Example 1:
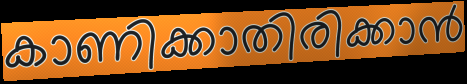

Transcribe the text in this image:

കാണിക്കാതിരിക്കാൻ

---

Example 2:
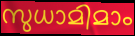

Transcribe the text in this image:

സുധാമിമാം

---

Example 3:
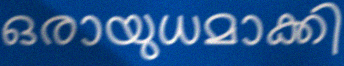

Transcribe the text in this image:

ഒരായുധമാക്കി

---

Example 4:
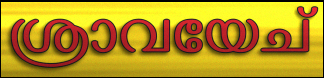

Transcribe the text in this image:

ശ്രാവയേച്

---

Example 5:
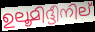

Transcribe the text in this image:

ഉലൂമിദ്ദീനില്